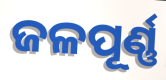
ଜଳପୂର୍ଣ୍ଣ